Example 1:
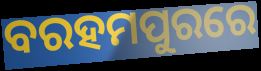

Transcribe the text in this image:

ବରହମପୁରରେ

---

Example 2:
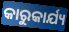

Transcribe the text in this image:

କାରୁକାର୍ଯ୍ୟ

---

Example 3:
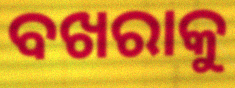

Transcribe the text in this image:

ବଖରାକୁ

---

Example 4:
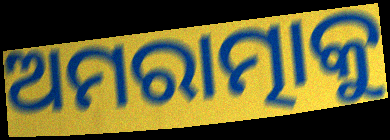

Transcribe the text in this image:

ଅମରାତ୍ମାକୁ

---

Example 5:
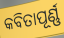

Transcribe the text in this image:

କବିତାପୂର୍ଣ୍ଣ